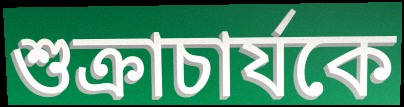
শুক্রাচার্যকে